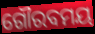
ଗୌରବମୟ